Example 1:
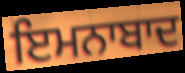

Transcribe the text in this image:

ਇਮਨਾਬਾਦ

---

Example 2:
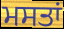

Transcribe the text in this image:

ਮਸਤਾਂ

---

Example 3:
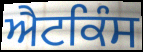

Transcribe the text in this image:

ਐਟਕਿੰਸ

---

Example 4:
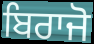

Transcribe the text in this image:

ਬਿਰਾਜੋ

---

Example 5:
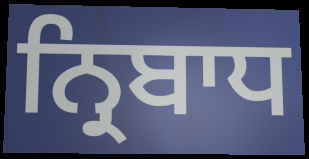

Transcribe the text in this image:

ਨ੍ਰਿਬਾਧ